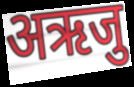
अऋजु